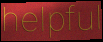
helpful